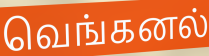
வெங்கனல்